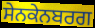
ਸੇਨਕੇਨਬਰਗ